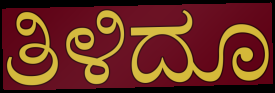
ತಿಳಿದೂ